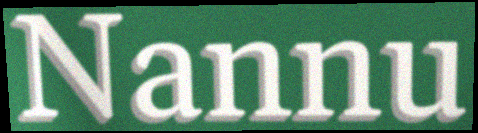
Nannu